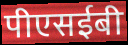
पीएसईबी